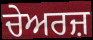
ਚੇਅਰਜ਼